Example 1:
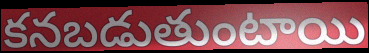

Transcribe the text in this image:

కనబడుతుంటాయి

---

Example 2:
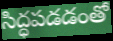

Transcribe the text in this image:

సిద్ధపడడంతో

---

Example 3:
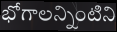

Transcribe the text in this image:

భోగాలన్నింటిని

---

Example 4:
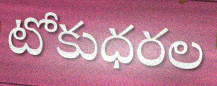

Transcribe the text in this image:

టోకుధరల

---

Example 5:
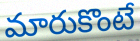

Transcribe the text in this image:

మారుకొంటే